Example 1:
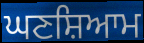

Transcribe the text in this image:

ਘਣਸ਼ਿਆਮ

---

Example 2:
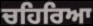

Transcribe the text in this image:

ਚਹਿਰਿਆ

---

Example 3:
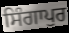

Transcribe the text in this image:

ਸਿੰਗਾਪੁਰ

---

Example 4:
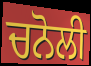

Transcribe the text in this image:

ਚਨੋਲੀ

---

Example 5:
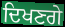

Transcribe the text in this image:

ਦਿਖਣਗੇ